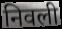
निवली